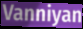
Vanniyan